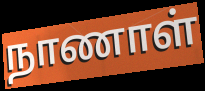
நாணாள்